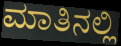
ಮಾತಿನಲ್ಲಿ